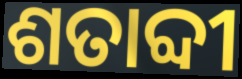
ଶତାବ୍ଦୀ